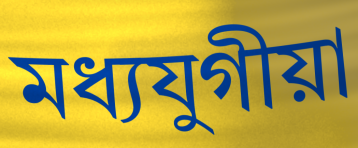
মধ্যযুগীয়া